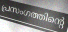
പ്രസംഗത്തിന്റെ